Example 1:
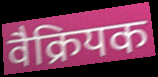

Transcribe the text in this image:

वैक्रियक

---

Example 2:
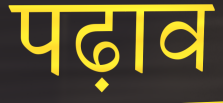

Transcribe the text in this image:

पढ़ाव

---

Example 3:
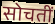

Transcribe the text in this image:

सोचतीं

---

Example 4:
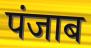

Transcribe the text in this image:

पंजाब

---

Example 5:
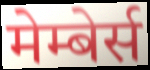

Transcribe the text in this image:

मेम्बेर्स